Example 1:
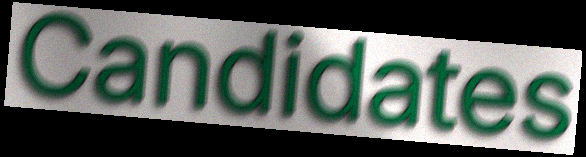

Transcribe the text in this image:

Candidates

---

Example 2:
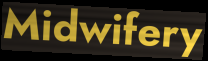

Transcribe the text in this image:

Midwifery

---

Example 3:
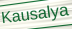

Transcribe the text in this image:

Kausalya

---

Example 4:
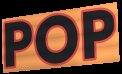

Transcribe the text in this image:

POP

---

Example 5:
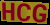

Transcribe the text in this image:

HCG